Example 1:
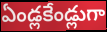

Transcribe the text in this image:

ఏండ్లకేండ్లుగా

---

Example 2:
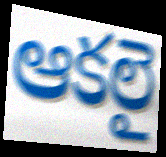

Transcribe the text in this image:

ఆకలై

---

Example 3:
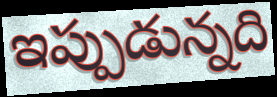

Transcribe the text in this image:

ఇప్పుడున్నది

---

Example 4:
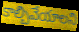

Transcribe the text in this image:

కాల్చివేయాలని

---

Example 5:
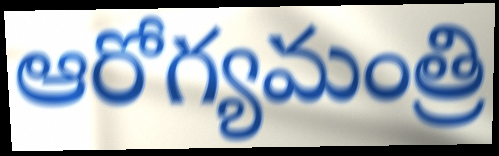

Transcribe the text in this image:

ఆరోగ్యమంత్రి